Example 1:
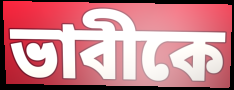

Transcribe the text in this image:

ভাবীকে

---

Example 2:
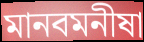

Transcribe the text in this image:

মানবমনীষা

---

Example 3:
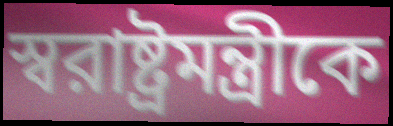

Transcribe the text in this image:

স্বরাষ্ট্রমন্ত্রীকে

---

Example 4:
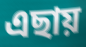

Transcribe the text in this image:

এছায়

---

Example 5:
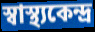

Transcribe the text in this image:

স্বাস্থ্যকেন্দ্র